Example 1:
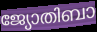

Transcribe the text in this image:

ജ്യോതിബാ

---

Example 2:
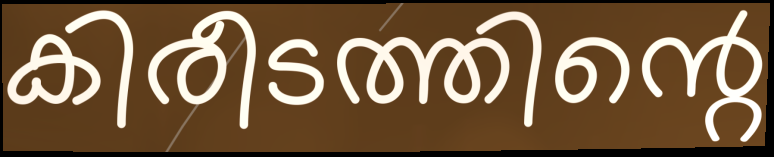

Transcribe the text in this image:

കിരീടത്തിന്റെ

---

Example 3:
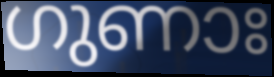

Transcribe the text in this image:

ഗുണാഃ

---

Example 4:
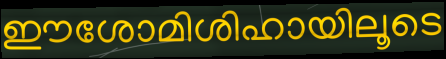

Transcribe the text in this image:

ഈശോമിശിഹായിലൂടെ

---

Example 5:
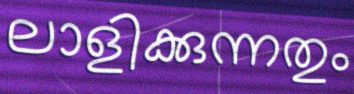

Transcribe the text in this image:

ലാളിക്കുന്നതും